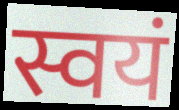
स्‍वयं